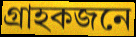
গ্ৰাহকজনে